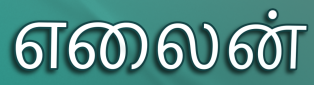
எலைன்